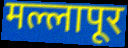
मल्लापूर